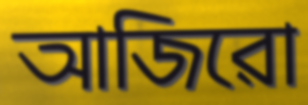
আজিৱো